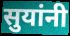
सुयांनी